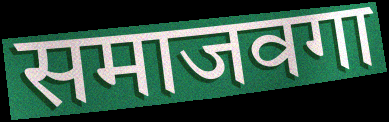
समाजवगा